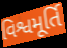
વિશ્વમૂર્તિ